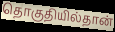
தொகுதியில்தான்